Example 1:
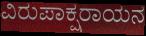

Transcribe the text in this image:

ವಿರುಪಾಕ್ಷರಾಯನ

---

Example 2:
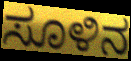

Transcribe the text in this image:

ಸೂಳಿನ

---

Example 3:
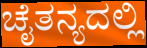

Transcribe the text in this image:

ಚೈತನ್ಯದಲ್ಲಿ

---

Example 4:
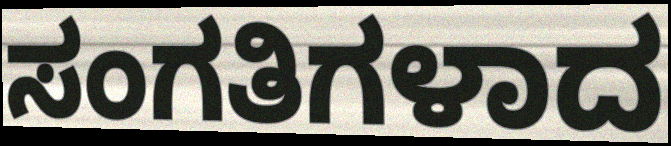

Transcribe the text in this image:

ಸಂಗತಿಗಳಾದ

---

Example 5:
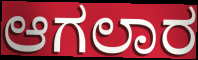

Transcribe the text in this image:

ಆಗಲಾರ